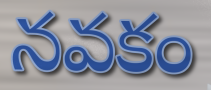
నవకం